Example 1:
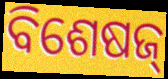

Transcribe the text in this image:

ବିଶେଷଜ୍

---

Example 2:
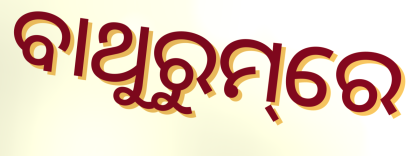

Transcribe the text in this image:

ବାଥୁରୁମ୍‌ରେ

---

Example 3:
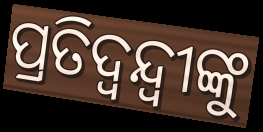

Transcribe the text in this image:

ପ୍ରତିଦ୍ଵନ୍ଦ୍ୱୀଙ୍କୁ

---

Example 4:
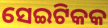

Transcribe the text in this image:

ସେଇଟିକକ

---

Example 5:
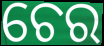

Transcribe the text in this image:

ଚେର